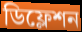
ডিফ্লেশন